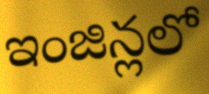
ఇంజిన్లలో